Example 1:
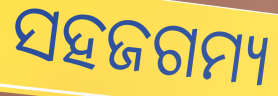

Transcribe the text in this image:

ସହଜଗମ୍ୟ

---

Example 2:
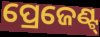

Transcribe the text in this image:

ପ୍ରେଜେଣ୍ଟ୍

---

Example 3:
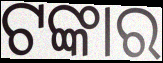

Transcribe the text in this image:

ଟଙ୍କାର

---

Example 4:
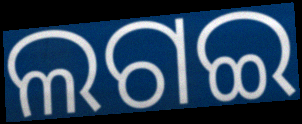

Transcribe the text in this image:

ଲଗଇ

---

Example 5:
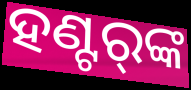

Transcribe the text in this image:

ହଣ୍ଟର୍‌ଙ୍କ